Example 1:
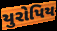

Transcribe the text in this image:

યુરોપિય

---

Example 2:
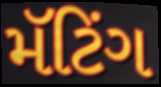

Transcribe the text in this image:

મૅટિંગ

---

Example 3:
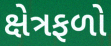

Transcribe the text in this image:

ક્ષેત્રફળો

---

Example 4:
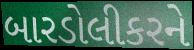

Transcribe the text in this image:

બારડોલીકરને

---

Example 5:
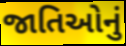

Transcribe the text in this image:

જાતિઓનું